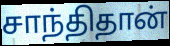
சாந்திதான்